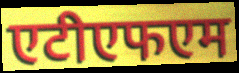
एटीएफएम